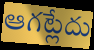
ఆగట్లేదు